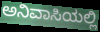
ಅನಿವಾಸಿಯಲ್ಲಿ